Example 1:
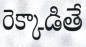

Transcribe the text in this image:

రెక్కాడితే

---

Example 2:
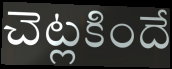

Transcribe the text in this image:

చెట్లకిందే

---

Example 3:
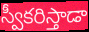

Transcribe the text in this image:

స్వీకరిస్తాడా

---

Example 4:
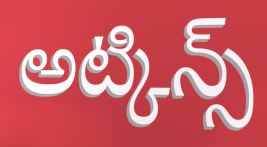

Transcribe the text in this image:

అట్కిన్స్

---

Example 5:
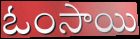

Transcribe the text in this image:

ఓంసాయి